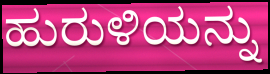
ಹುರುಳಿಯನ್ನು